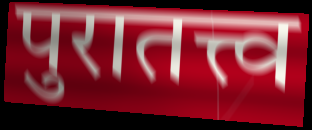
पुरातत्त्व